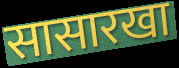
सासारखा